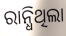
ରାନ୍ଧିଥିଲା